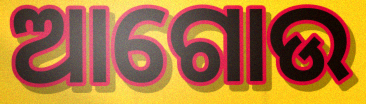
ଆଗୋଉ